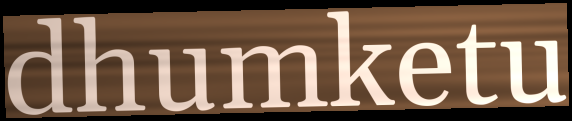
dhumketu